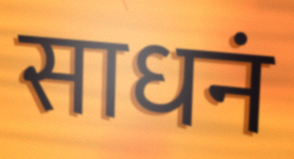
साधनं